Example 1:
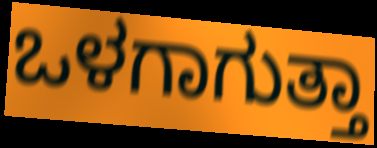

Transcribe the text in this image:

ಒಳಗಾಗುತ್ತಾ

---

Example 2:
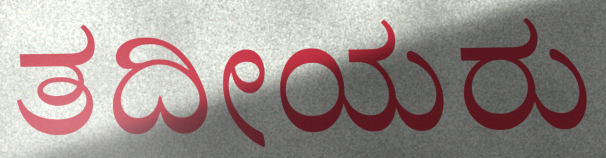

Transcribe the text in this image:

ತದೀಯರು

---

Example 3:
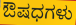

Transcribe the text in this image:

ಔಷಧಗಳು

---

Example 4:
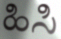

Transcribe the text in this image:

ಹಿಸಿ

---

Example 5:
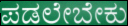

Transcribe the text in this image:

ಪಡಲೇಬೇಕು